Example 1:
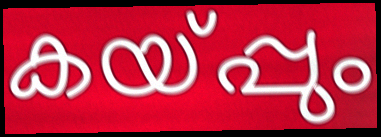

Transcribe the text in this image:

കയ്പ്പും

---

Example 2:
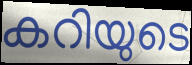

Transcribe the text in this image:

കറിയുടെ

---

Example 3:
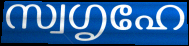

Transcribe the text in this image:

സ്വഗൃഹേ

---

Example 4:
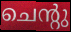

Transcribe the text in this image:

ചെന്റു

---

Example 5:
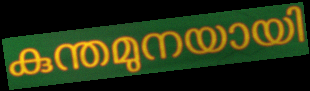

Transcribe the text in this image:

കുന്തമുനയായി